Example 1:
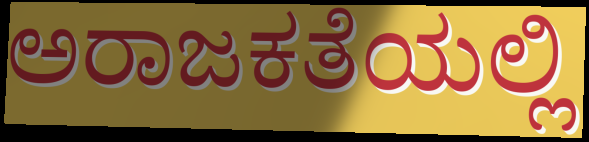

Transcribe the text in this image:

ಅರಾಜಕತೆಯಲ್ಲಿ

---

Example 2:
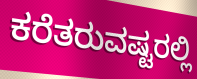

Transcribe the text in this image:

ಕರೆತರುವಷ್ಟರಲ್ಲಿ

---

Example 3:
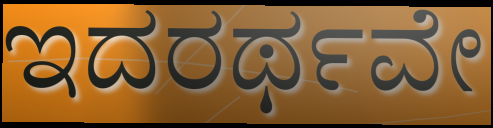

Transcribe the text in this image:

ಇದರರ್ಥವೇ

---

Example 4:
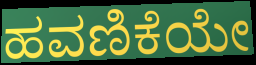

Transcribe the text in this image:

ಹವಣಿಕೆಯೇ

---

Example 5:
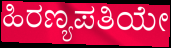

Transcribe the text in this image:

ಹಿರಣ್ಯಪತಿಯೇ